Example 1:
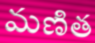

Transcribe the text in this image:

మణిత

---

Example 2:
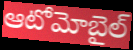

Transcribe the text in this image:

ఆటోమోబైల్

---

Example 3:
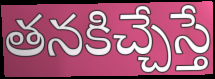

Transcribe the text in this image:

తనకిచ్చేస్తే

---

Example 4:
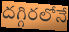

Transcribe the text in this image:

దగ్గిరలోనే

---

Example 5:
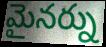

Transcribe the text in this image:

మైనర్ను